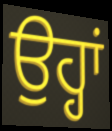
ਉਹ੍ਹਾਂ